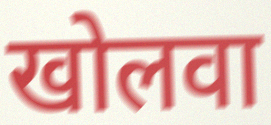
खोलवा